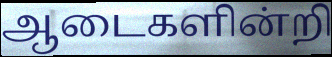
ஆடைகளின்றி